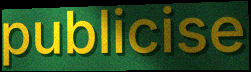
publicise